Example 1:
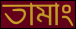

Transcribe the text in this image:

তামাং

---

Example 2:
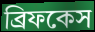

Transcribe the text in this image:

ব্রিফকেস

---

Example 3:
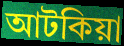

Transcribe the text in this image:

আটকিয়া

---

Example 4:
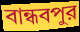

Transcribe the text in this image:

বান্ধবপুর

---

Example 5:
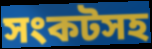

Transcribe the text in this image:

সংকটসহ